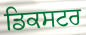
ਡਿਕਸਟਰ